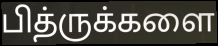
பித்ருக்களை